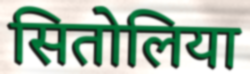
सितोलिया